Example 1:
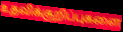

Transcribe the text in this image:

உதவிக்குறிப்புகளை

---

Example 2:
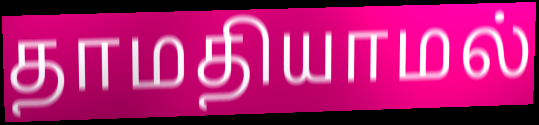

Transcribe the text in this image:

தாமதியாமல்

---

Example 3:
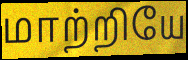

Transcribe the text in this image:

மாற்றியே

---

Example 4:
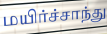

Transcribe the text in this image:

மயிர்ச்சாந்து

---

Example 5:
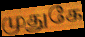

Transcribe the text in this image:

முதுகே